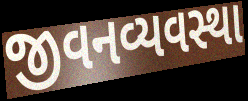
જીવનવ્યવસ્થા